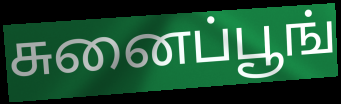
சுனைப்பூங்